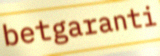
betgaranti